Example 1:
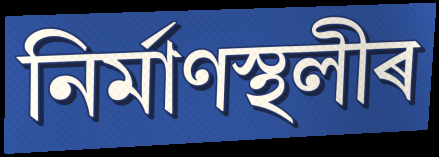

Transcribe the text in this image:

নিৰ্মাণস্থলীৰ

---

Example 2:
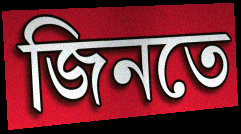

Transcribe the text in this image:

জিনতে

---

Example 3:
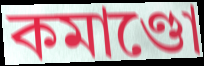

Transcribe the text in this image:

কমাণ্ডো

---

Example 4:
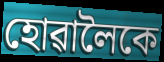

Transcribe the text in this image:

হোৱালৈকে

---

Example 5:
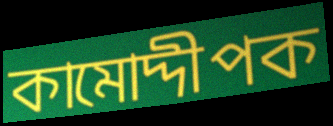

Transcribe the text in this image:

কামোদ্দীপক